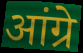
आंग्रे